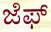
ಜೆಫ್